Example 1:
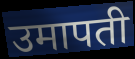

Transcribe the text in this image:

उमापती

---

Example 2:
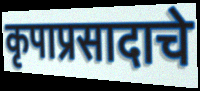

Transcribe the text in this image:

कृपाप्रसादाचे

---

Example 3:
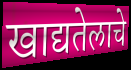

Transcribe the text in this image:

खाद्यतेलाचे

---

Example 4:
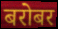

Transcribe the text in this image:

बरोबर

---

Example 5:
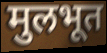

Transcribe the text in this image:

मुलभूत